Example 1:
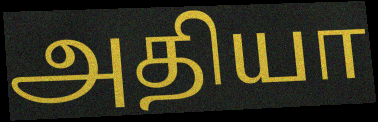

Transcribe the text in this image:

அதியா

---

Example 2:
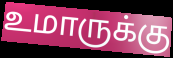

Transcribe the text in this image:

உமாருக்கு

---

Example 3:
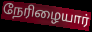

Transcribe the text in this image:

நேரிழையார்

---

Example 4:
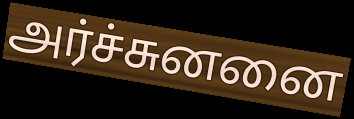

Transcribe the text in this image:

அர்ச்சுனனை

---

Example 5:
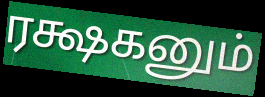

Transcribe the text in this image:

ரக்ஷகனும்